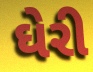
ઘેરી